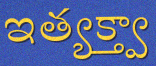
ఇత్యక్త్వా